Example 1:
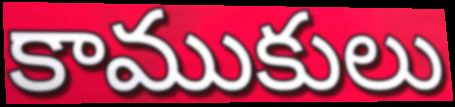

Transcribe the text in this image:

కాముకులు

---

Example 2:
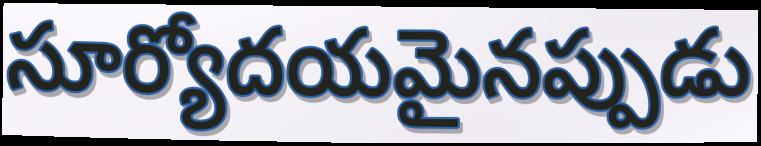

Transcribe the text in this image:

సూర్యోదయమైనప్పుడు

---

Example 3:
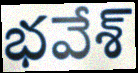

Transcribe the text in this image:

భవేశ్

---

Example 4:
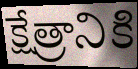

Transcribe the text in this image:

క్షేత్రానికి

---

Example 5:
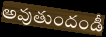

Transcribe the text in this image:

అవుతుందండీ